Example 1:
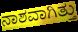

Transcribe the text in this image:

ನಾಶವಾಗಿತ್ತು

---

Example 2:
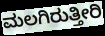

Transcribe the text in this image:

ಮಲಗಿರುತ್ತೀರಿ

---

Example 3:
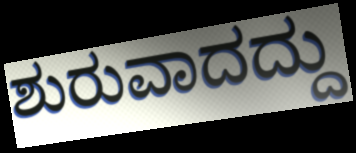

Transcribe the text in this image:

ಶುರುವಾದದ್ದು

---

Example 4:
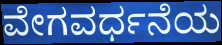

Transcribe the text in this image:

ವೇಗವರ್ಧನೆಯ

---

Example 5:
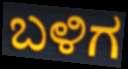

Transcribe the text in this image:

ಬಳಿಗ